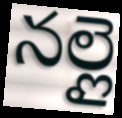
నల్లై